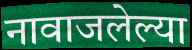
नावाजलेल्या